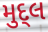
મુદ્લ